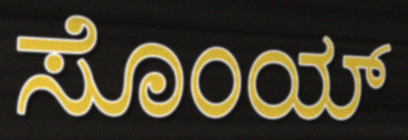
ಸೊಂಯ್